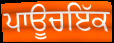
ਪਾਊਚਇੱਕ